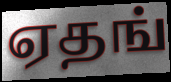
ஏதங்